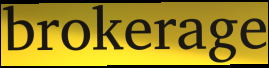
brokerage